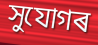
সুযোগৰ